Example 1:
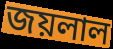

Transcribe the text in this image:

জয়লাল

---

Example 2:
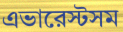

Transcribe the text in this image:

এভারেস্টসম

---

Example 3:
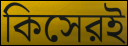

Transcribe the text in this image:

কিসেরই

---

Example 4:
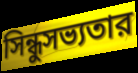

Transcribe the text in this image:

সিন্ধুসভ্যতার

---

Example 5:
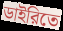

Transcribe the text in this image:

ডাইরিতে